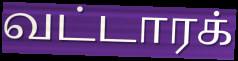
வட்டாரக்